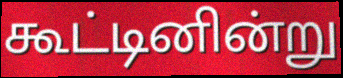
கூட்டினின்று